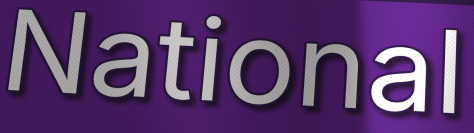
National